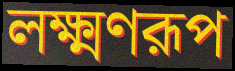
লক্ষ্মণরূপ